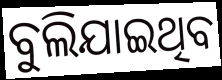
ବୁଲିଯାଇଥିବ